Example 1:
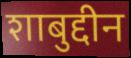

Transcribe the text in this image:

शाबुद्दीन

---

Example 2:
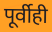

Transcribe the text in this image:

पूर्वीही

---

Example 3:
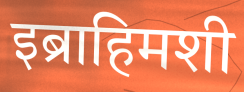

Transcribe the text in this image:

इब्राहिमशी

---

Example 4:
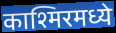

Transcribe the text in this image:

काश्मिरमध्ये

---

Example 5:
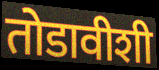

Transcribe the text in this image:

तोडावीशी